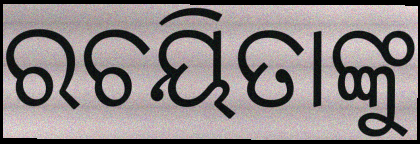
ରଚୟିତାଙ୍କୁ